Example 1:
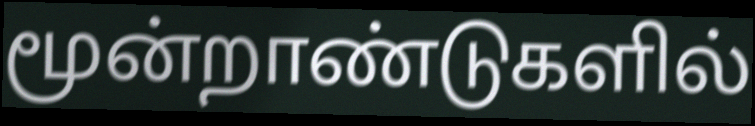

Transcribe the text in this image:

மூன்றாண்டுகளில்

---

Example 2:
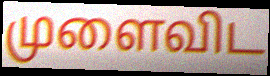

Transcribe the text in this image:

முளைவிட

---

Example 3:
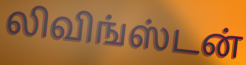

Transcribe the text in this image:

லிவிங்ஸ்டன்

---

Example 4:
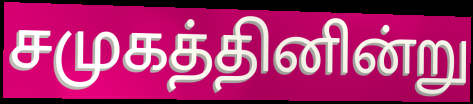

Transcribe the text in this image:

சமுகத்தினின்று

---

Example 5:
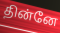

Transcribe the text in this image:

தின்னே